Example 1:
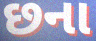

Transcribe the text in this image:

છના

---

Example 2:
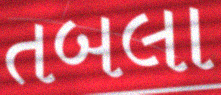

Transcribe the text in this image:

તબલા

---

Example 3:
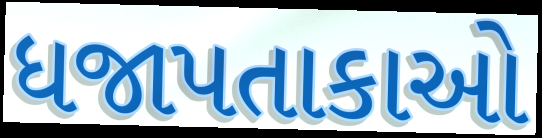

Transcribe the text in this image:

ધજાપતાકાઓ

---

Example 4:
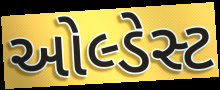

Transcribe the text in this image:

ઓલ્ડેસ્ટ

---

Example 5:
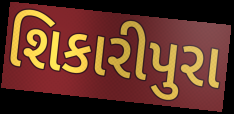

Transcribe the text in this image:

શિકારીપુરા